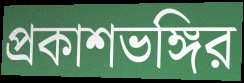
প্রকাশভঙ্গির